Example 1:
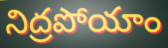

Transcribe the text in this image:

నిద్రపోయాం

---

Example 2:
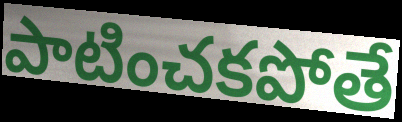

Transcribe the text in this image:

పాటించకపోతే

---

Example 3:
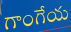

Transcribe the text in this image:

గాంగేయ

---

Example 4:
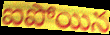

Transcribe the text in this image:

ఐపోయిన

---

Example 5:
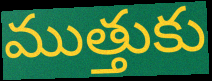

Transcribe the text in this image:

ముత్తుకు